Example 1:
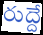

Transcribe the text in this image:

రుద్దే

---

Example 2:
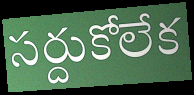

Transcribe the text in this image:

సర్దుకోలేక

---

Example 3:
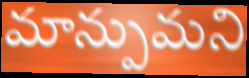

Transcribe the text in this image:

మాన్పుమని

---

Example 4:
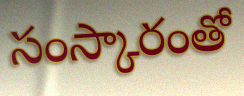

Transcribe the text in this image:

సంస్కారంతో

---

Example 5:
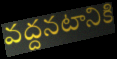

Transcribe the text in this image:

వద్దనటానికి